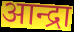
आन्द्रा